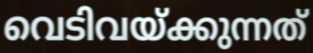
വെടിവയ്ക്കുന്നത്